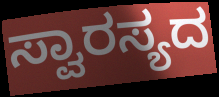
ಸ್ವಾರಸ್ಯದ